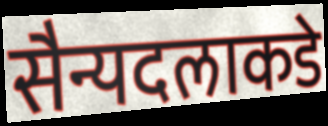
सैन्यदलाकडे